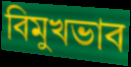
বিমুখভাব